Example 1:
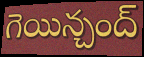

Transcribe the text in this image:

గెయిన్చంద్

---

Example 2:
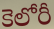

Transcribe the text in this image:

కెలోరీ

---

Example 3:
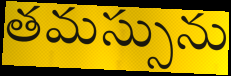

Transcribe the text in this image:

తమస్సును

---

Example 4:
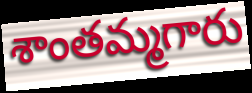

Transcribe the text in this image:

శాంతమ్మగారు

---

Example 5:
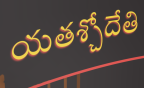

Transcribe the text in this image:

యతశ్చోదేతి